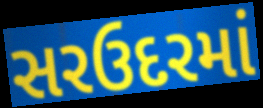
સરઉદરમાં